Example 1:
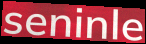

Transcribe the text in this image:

seninle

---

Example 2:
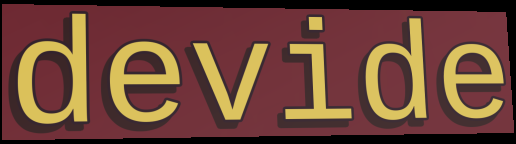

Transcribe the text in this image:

devide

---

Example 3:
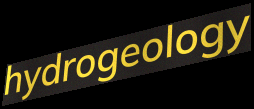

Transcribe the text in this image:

hydrogeology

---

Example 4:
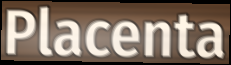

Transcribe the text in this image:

Placenta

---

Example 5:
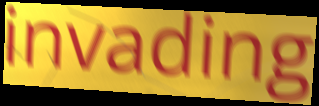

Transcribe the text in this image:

invading